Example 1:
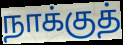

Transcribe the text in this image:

நாக்குத்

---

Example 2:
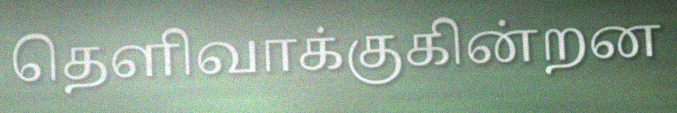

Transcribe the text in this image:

தெளிவாக்குகின்றன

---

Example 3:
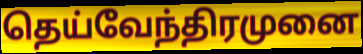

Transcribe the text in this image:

தெய்வேந்திரமுனை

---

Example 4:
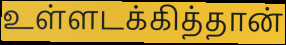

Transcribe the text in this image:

உள்ளடக்கித்தான்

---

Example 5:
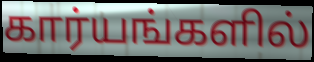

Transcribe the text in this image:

கார்யங்களில்